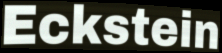
Eckstein